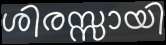
ശിരസ്സായി